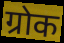
ग्रोक